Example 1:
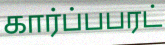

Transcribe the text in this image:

கார்ப்பபரட்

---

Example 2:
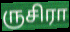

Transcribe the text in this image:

ருசிரா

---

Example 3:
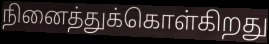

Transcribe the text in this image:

நினைத்துக்கொள்கிறது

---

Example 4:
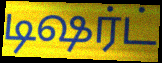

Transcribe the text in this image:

டிஷர்ட்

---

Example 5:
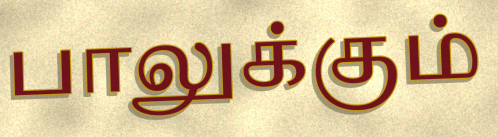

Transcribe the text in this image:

பாலுக்கும்